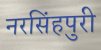
नरसिंहपुरी